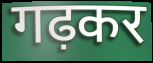
गढ़कर